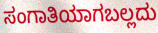
ಸಂಗಾತಿಯಾಗಬಲ್ಲದು